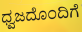
ಧ್ವಜದೊಂದಿಗೆ